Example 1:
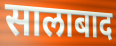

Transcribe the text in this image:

सालाबाद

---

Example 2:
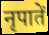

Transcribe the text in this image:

नृपातें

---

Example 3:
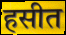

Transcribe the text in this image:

हसीत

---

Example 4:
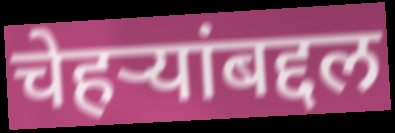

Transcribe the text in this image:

चेहऱ्यांबद्दल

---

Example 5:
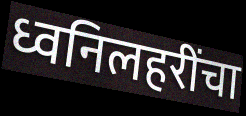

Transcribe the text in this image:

ध्वनिलहरींचा